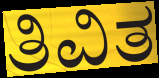
ತಿವಿತ